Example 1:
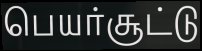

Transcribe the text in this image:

பெயர்சூட்டு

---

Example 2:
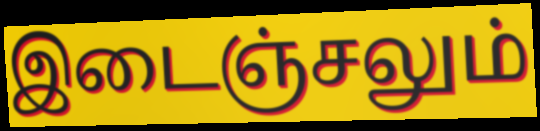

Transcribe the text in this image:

இடைஞ்சலும்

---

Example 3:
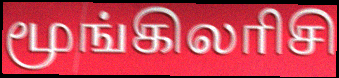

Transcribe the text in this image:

மூங்கிலரிசி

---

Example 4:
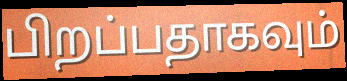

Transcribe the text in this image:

பிறப்பதாகவும்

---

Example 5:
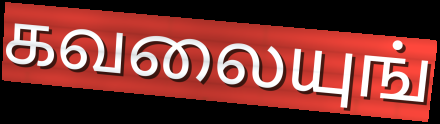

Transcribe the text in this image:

கவலையுங்